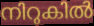
നിറുകിൽ